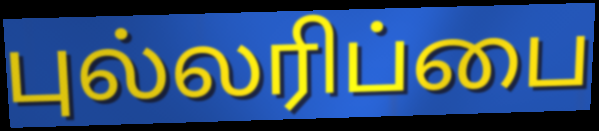
புல்லரிப்பை